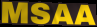
MSAA